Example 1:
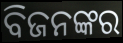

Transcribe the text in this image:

ବିଜନଙ୍କର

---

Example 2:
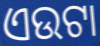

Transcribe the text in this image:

ଏଉଟା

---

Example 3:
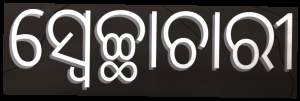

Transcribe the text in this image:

ସ୍ଵେଚ୍ଛାଚାରୀ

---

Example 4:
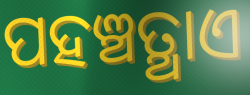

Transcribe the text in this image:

ପହଞ୍ଚତ୍ଥାଏ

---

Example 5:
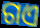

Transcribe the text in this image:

ଗଏ